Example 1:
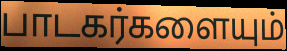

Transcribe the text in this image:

பாடகர்களையும்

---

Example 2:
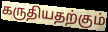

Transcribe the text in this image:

கருதியதற்கும்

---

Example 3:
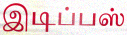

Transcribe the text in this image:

இடிப்பஸ்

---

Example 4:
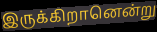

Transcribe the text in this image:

இருக்கிறானென்று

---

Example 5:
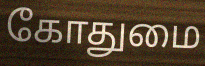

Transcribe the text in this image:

கோதுமை